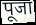
पूजा